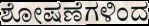
ಶೋಷಣೆಗಳಿಂದ